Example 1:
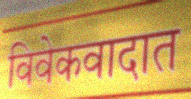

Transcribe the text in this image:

विवेकवादात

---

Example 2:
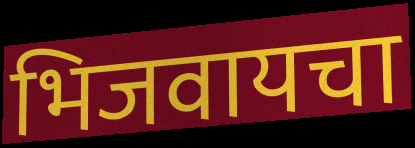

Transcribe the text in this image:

भिजवायचा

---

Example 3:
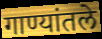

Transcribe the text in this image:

गाण्यांतले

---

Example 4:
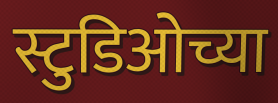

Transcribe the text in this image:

स्टुडिओच्या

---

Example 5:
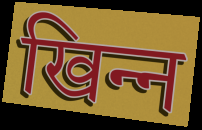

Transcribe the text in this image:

खिन्‍न